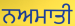
ਨਅਮਾਤੀ